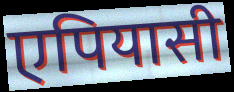
एपियासी